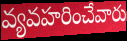
వ్యవహరించేవారు